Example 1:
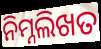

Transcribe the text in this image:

ନିମ୍ନଲିଖତ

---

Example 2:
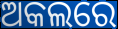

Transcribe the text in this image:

ଅକଲରେ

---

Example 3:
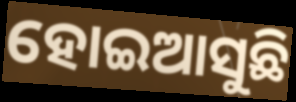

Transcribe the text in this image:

ହୋଇଆସୁଛି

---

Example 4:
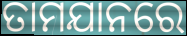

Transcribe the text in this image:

ତାମଯାନରେ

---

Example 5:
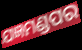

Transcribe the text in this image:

ଯଜ୍ଞମଣ୍ଡପର